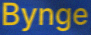
Bynge